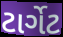
ટાર્ગેટ